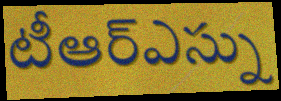
టీఆర్ఎస్ను